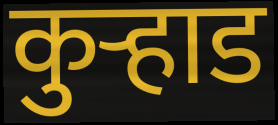
कुऱ्हाड